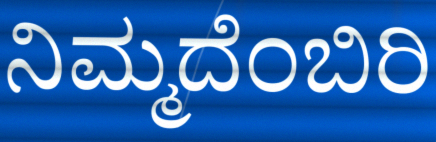
ನಿಮ್ಮದೆಂಬಿರಿ